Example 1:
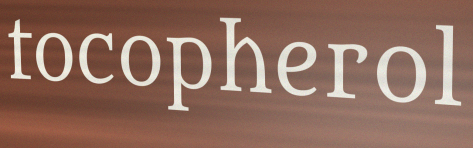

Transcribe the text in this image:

tocopherol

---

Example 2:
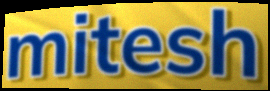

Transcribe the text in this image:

mitesh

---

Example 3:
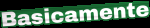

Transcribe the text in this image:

Basicamente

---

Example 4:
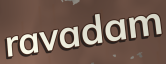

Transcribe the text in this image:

ravadam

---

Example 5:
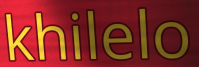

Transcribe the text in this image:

khilelo